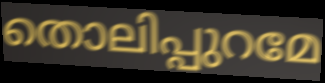
തൊലിപ്പുറമേ